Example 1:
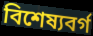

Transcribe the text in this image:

বিশেষ্যবর্গ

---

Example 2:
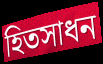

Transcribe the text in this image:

হিতসাধন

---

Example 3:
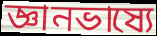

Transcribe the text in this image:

জ্ঞানভাষ্যে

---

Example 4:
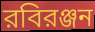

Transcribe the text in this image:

রবিরঞ্জন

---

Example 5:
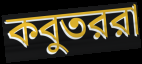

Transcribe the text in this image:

কবুতররা